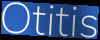
Otitis